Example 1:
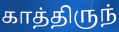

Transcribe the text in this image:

காத்திருந்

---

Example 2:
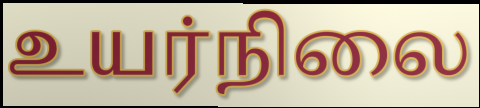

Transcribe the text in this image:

உயர்நிலை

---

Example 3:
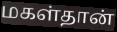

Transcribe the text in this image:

மகள்தான்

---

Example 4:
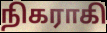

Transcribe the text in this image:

நிகராகி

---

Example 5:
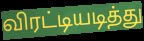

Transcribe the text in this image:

விரட்டியடித்து